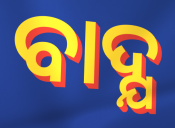
ବାଦ୍ଯ